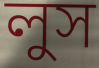
লুস